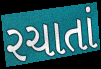
રચાતાં